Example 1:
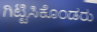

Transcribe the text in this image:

ಗಿಟ್ಟಿಸಿಕೊಂಡರು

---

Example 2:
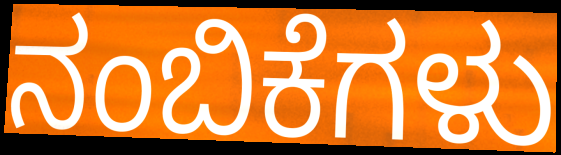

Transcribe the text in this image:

ನಂಬಿಕೆಗಳು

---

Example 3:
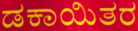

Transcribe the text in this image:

ಡಕಾಯಿತರ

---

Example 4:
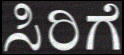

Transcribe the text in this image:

ಸಿರಿಗೆ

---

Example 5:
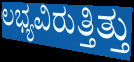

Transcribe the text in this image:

ಲಭ್ಯವಿರುತ್ತಿತ್ತು